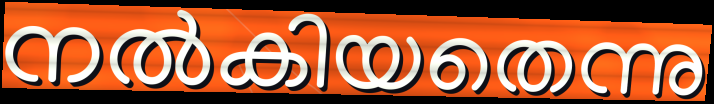
നൽകിയതെന്നു